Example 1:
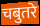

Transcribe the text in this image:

चबुतरे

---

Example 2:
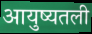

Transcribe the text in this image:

आयुष्यतली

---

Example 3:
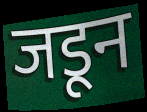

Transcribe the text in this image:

जडून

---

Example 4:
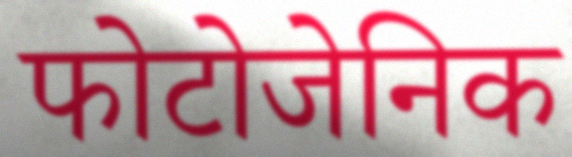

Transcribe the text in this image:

फोटोजेनिक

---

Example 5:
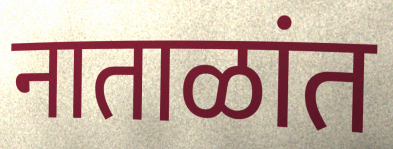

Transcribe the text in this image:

नाताळांत